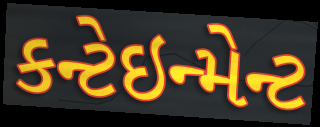
કન્ટેઇન્મેન્ટ